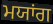
ਮਯਾਂਗ